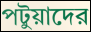
পটুয়াদের